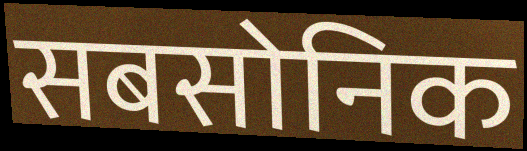
सबसोनिक